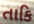
તાકિ